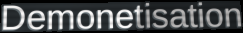
Demonetisation